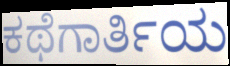
ಕಥೆಗಾರ್ತಿಯ